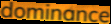
dominance